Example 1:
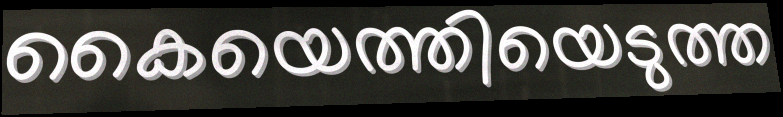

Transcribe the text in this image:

കൈയെത്തിയെടുത്ത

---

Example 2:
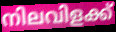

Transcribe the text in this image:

നിലവിളക്ക്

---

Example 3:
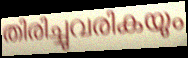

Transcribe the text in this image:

തിരിച്ചുവരികയും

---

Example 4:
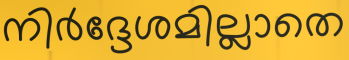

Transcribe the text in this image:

നിർദ്ദേശമില്ലാതെ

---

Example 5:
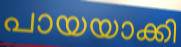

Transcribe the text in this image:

പായയാക്കി